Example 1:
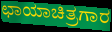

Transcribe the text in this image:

ಛಾಯಾಚಿತ್ರಗಾರ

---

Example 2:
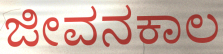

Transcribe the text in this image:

ಜೀವನಕಾಲ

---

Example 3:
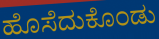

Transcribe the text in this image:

ಹೊಸೆದುಕೊಂಡು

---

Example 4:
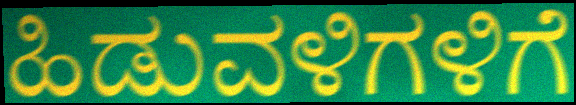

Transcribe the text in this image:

ಹಿಡುವಳಿಗಳಿಗೆ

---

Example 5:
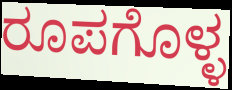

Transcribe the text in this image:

ರೂಪಗೊಳ್ಳ